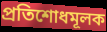
প্রতিশোধমূলক